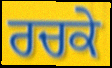
ਰਚਕੇ